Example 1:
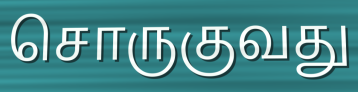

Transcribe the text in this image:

சொருகுவது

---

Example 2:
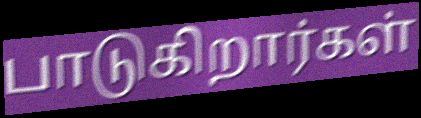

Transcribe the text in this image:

பாடுகிறார்கள்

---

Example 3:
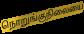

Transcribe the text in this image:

நொறுங்குநிலையை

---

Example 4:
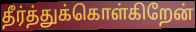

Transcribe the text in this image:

தீர்த்துக்கொள்கிறேன்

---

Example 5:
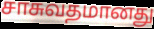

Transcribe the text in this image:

சாசுவதமானது